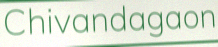
Chivandagaon